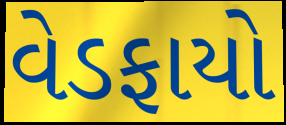
વેડફાયો